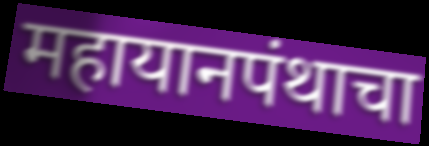
महायानपंथाचा